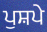
ਪੁਸ਼ਪੇ